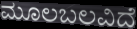
ಮೂಲಬಲವಿದೆ